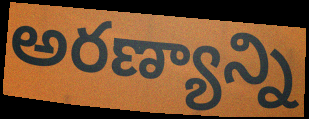
అరణ్యాన్ని